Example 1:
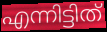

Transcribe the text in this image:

എന്നിട്ടിത്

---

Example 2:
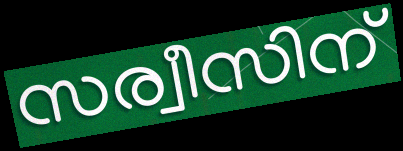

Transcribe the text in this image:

സര്വീസിന്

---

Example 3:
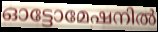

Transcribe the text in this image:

ഓട്ടോമേഷനിൽ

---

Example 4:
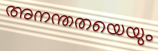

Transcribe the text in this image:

അനന്തതയെയും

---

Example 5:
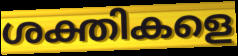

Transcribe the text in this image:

ശക്തികളെ